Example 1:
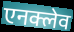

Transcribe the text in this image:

एनक्लेव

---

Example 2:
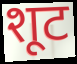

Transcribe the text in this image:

शूट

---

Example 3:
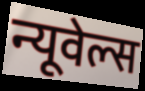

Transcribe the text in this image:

न्यूवेल्स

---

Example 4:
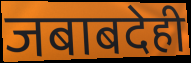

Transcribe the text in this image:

जबाबदेही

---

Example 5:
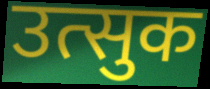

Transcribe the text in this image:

उत्‍सुक